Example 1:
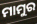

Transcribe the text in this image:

ମାମୁର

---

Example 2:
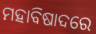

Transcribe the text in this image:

ମହାବିଷାଦରେ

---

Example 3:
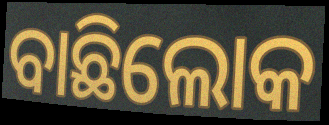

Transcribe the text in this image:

ବାଛିଲୋକ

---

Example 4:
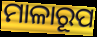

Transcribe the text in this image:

ମାଳାରୂପ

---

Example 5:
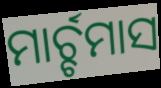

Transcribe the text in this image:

ମାର୍ଚ୍ଚମାସ